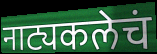
नाट्यकलेचं